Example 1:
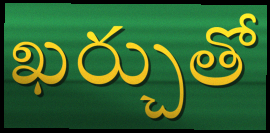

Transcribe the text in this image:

ఖర్చుతో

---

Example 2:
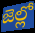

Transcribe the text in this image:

జెల్లో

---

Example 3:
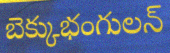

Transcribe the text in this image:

బెక్కుభంగులన్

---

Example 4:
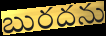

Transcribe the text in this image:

బురదను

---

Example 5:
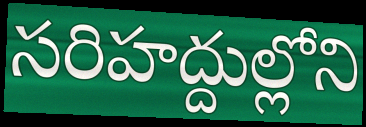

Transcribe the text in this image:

సరిహద్దుల్లోని